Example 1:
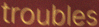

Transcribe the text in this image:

troubles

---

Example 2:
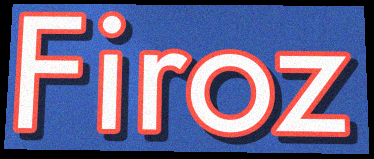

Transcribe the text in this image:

Firoz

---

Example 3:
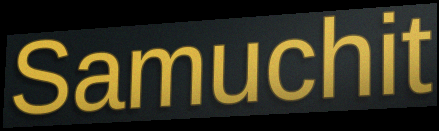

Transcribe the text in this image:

Samuchit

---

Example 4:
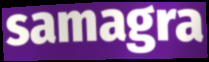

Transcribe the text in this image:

samagra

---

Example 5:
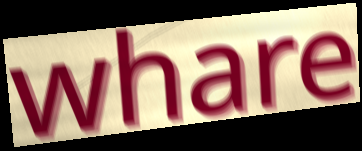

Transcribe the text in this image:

whare